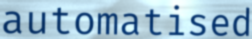
automatised